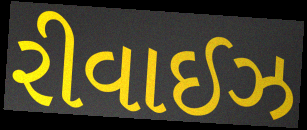
રીવાઈઝ